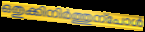
ഒതുക്കിനിർത്തുന്പോൾ